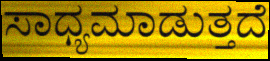
ಸಾಧ್ಯಮಾಡುತ್ತದೆ